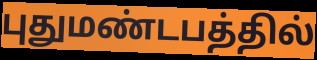
புதுமண்டபத்தில்